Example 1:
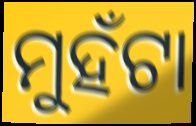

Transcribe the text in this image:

ମୁହଁଟା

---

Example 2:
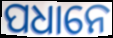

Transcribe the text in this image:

ପଧାନେ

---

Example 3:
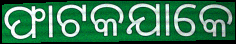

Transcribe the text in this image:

ଫାଟକଯାକେ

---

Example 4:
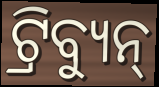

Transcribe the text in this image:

ଟ୍ରିବ୍ୟୁନ୍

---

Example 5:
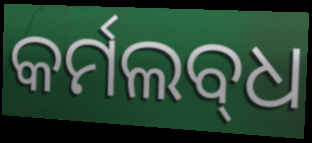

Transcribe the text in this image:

କର୍ମଲବ୍‌ଧ